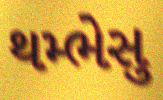
થમ્ભેસુ